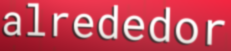
alrededor